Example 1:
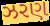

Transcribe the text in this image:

ઝરણ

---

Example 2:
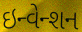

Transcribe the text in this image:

ઇન્વેન્શન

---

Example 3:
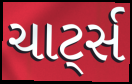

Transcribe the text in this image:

ચાર્ટ્સ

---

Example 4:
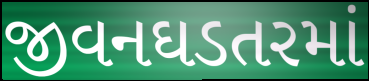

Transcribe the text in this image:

જીવનઘડતરમાં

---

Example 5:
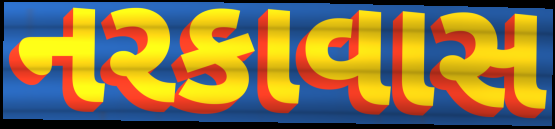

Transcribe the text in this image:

નરકાવાસ